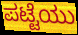
ಪಟ್ಟೆಯು